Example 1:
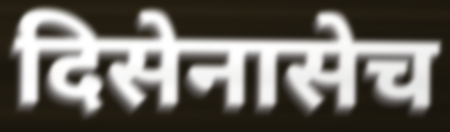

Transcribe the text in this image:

दिसेनासेच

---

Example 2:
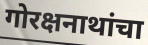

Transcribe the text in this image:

गोरक्षनाथांचा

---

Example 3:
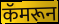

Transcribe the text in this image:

कॅमरून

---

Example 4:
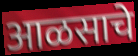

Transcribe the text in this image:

आळसाचे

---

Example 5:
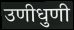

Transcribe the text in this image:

उणीधुणी